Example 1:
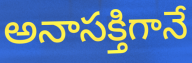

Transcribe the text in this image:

అనాసక్తిగానే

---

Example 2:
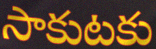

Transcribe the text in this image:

సాకుటకు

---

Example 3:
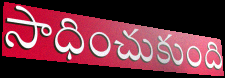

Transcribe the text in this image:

సాధించుకుంది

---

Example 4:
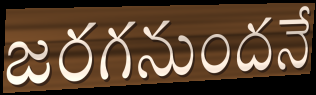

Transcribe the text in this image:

జరగనుందనే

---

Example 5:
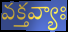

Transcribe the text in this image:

వక్తవ్యాః